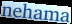
nehama